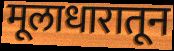
मूलाधारातून